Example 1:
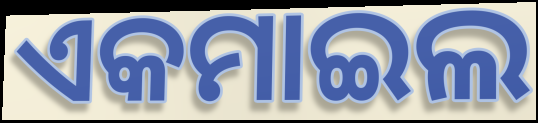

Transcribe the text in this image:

ଏକମାଇଲ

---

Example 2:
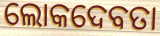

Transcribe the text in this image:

ଲୋକଦେବତା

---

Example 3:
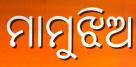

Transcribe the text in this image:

ମାମୁଝିଅ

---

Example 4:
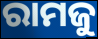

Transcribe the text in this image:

ରାମଜୁ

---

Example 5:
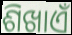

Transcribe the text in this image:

ଶିଖାଏଁ